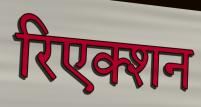
रिएक्शन